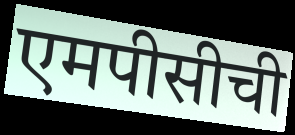
एमपीसीची